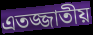
এতজ্জাতীয়